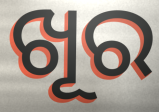
ଖୂର